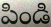
పిండి